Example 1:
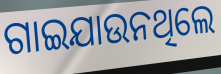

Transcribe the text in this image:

ଗାଇଯାଉନଥିଲେ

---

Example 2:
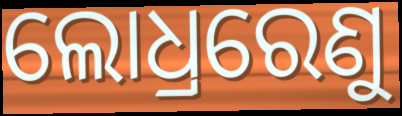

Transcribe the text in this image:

ଲୋଧ୍ରରେଣୁ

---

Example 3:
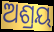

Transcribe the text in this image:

ଅଶ୍ରୟ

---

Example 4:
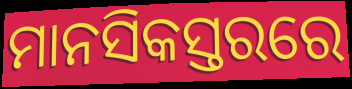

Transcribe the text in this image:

ମାନସିକସ୍ତରରେ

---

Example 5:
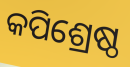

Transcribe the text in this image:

କପିଶ୍ରେଷ୍ଠ